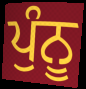
ਪੁੰਨੂ